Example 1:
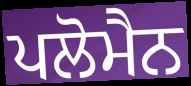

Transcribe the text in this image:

ਪਲੋਮੈਨ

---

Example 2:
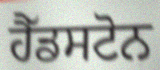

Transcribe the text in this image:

ਹੈੱਡਸਟੋਨ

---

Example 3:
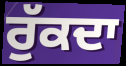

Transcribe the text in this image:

ਰੁੱਕਦਾ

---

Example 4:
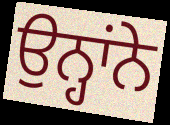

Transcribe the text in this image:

ਉਨ੍ਹਾਂਨੇ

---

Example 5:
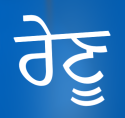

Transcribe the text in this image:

ਰੇਣੂ